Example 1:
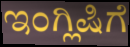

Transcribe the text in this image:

ಇಂಗ್ಲಿಷಿಗೆ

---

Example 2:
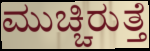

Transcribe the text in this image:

ಮುಚ್ಚಿರುತ್ತೆ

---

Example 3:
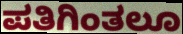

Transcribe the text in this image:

ಪತಿಗಿಂತಲೂ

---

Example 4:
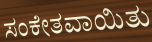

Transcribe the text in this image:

ಸಂಕೇತವಾಯಿತು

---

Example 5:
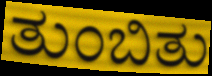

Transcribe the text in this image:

ತುಂಬಿತು